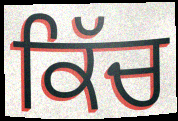
ਕਿੱਚ